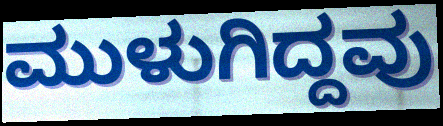
ಮುಳುಗಿದ್ದವು